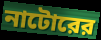
নাটোরের